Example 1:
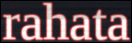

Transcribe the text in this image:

rahata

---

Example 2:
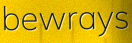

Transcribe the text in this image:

bewrays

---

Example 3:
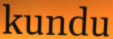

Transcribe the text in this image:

kundu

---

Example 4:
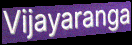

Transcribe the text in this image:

Vijayaranga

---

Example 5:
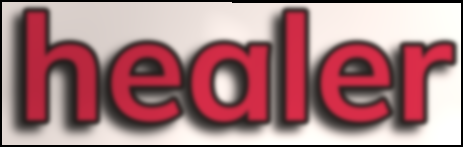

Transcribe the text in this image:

healer